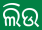
ଲିଉ